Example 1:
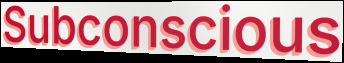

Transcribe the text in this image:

Subconscious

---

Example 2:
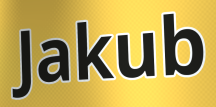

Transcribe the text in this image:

Jakub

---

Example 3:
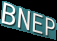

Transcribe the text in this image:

BNEP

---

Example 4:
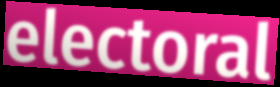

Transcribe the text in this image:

electoral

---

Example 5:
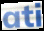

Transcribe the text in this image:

ati